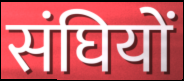
संघियों